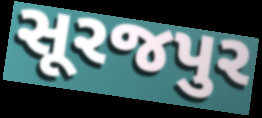
સૂરજપુર